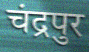
चंद्रपुर